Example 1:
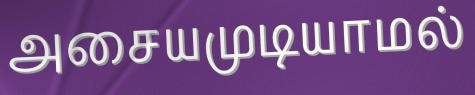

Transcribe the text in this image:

அசையமுடியாமல்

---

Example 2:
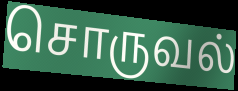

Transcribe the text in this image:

சொருவல்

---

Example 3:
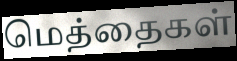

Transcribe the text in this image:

மெத்தைகள்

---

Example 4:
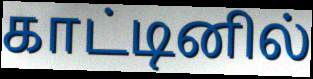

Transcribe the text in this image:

காட்டினில்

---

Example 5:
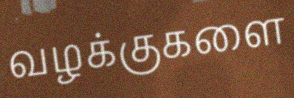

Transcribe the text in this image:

வழக்குகளை